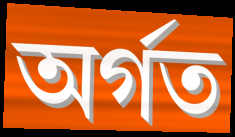
অৰ্গত